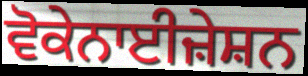
ਵੋਕੇਨਾਈਜ਼ੇਸ਼ਨ